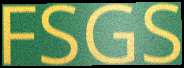
FSGS